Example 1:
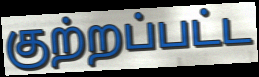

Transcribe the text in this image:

குற்றப்பட்ட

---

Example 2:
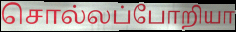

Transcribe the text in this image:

சொல்லப்போறியா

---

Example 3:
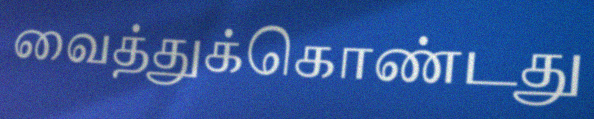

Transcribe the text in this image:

வைத்துக்கொண்டது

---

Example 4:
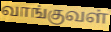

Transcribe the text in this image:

வாங்குவள்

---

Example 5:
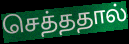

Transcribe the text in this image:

செத்ததால்